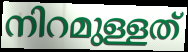
നിറമുള്ളത്